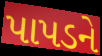
પાપડને